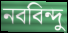
নববিন্দু